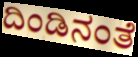
ದಿಂಡಿನಂತೆ